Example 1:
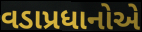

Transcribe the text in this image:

વડાપ્રધાનોએ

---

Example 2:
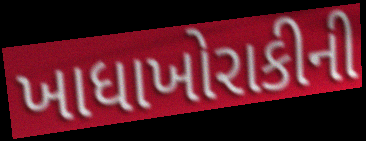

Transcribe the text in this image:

ખાધાખોરાકીની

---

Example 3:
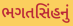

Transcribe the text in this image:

ભગતસિંહનું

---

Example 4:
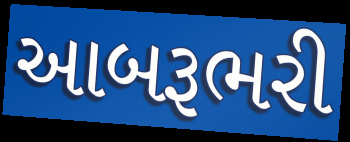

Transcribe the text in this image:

આબરૂભરી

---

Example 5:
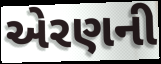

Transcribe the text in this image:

એરણની